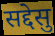
सद्देसु